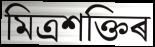
মিত্ৰশক্তিৰ